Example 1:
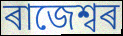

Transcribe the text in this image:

ৰাজেশ্বৰ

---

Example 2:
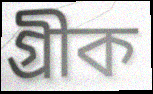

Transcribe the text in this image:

গ্ৰীক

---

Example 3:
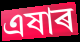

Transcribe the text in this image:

এষাৰ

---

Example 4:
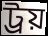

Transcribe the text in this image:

ট্ৰয়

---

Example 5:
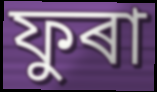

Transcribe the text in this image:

ফুৰা